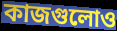
কাজগুলোও